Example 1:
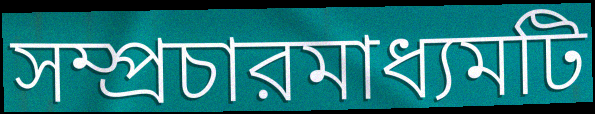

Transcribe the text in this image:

সম্প্রচারমাধ্যমটি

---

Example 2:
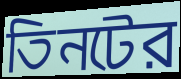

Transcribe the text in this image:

তিনটের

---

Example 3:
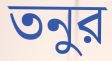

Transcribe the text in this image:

তনুর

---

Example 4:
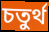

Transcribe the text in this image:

চতুর্থ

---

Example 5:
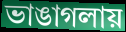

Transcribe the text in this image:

ভাঙাগলায়